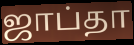
ஜாப்தா